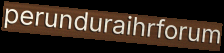
perunduraihrforum